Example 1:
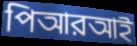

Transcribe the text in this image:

পিআরআই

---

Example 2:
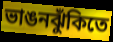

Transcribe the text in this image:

ভাঙনঝুঁকিতে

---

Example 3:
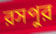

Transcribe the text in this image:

রসপুর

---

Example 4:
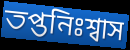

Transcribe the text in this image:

তপ্তনিঃশ্বাস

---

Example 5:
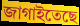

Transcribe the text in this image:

জাগাইতেছে